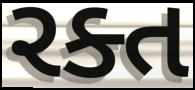
રક્ત